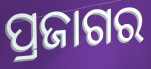
ପ୍ରଜାଗର